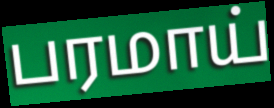
பரமாய்